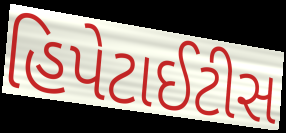
હિપેટાઈટીસ